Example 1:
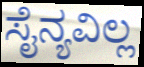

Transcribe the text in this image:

ಸೈನ್ಯವಿಲ್ಲ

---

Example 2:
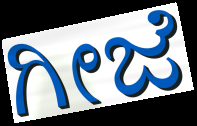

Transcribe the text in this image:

ಗೀಜೆ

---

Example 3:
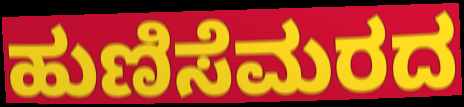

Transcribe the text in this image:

ಹುಣಿಸೆಮರದ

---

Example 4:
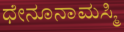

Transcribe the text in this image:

ಧೇನೂನಾಮಸ್ಮಿ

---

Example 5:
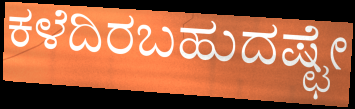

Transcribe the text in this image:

ಕಳೆದಿರಬಹುದಷ್ಟೇ